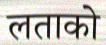
लताको